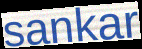
sankar